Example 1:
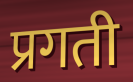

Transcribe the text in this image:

प्रगती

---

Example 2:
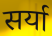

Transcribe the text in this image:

सर्या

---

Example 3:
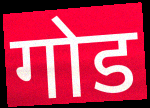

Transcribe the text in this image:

गोड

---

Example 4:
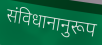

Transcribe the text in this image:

संविधानानुरूप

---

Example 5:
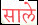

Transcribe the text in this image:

साले